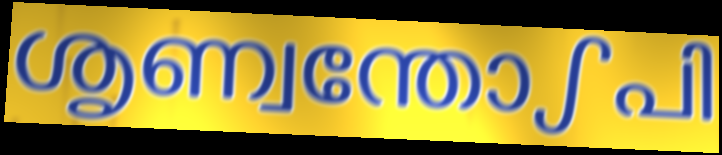
ശൃണ്വന്തോഽപി